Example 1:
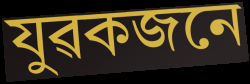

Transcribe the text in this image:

যুৱকজনে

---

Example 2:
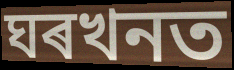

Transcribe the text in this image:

ঘৰখনত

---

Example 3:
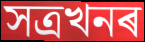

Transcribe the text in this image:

সত্ৰখনৰ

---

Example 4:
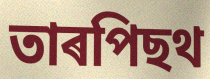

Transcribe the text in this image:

তাৰপিছথ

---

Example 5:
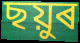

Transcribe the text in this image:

ছয়ুৰ